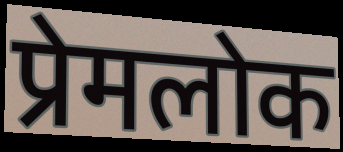
प्रेमलोक